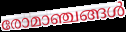
രോമാഞ്ചങ്ങൾ